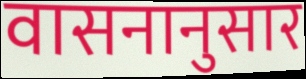
वासनानुसार